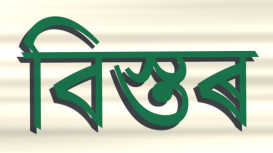
বিস্তৰ